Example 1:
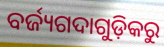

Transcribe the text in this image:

ବର୍ଜ୍ୟଗଦାଗୁଡ଼ିକରୁ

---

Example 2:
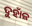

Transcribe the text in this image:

ଦୁହାଁଳ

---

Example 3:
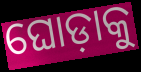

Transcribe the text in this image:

ଘୋଡ଼ାକୁ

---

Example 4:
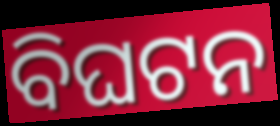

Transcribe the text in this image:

ବିଘଟନ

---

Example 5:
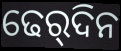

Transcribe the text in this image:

ଢେର୍‌ଦିନ